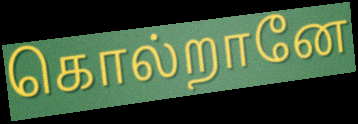
கொல்றானே